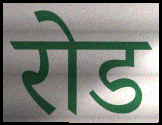
रोड